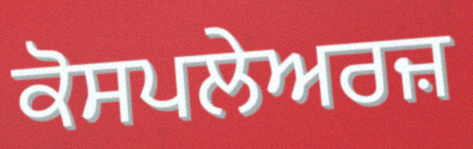
ਕੋਸਪਲੇਅਰਜ਼